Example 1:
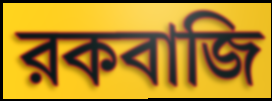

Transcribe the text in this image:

রকবাজি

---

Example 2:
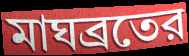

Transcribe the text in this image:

মাঘব্রতের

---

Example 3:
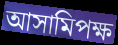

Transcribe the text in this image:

আসামিপক্ষ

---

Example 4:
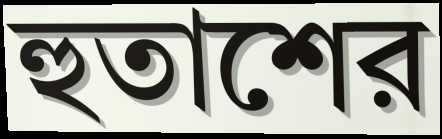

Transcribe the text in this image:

হুতাশের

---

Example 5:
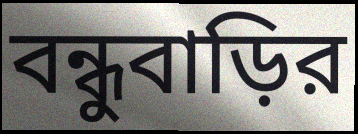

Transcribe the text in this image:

বন্ধুবাড়ির